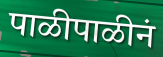
पाळीपाळीनं